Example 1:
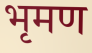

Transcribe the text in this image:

भृमण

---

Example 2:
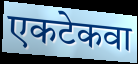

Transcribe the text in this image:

एकटेकवा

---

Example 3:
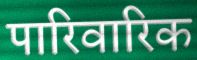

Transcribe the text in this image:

पारिवारिक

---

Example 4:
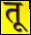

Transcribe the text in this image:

तू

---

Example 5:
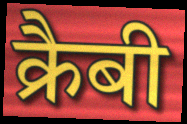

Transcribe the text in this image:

क्रैबी